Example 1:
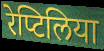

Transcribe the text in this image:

रेप्टिलिया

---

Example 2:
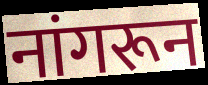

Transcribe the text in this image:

नांगरून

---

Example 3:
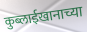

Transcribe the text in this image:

कुब्लाईखानाच्या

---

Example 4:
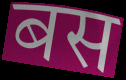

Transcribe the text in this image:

बस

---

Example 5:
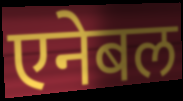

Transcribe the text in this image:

एनेबल